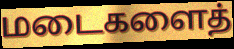
மடைகளைத்